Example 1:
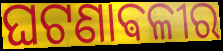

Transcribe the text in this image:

ଘଟଣାଵଳୀର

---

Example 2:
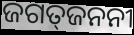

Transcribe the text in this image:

ଜଗତ୍‍ଜନନୀ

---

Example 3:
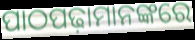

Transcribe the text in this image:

ପାଠପଢ଼ାମାନଙ୍କରେ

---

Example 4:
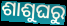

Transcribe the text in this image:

ଶାଶୁଘରୁ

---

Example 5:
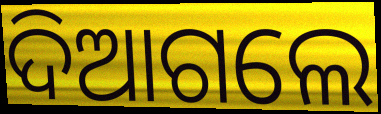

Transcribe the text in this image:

ଦିଆଗଲେ